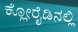
ಕ್ಲೋರೈಡಿನಲ್ಲಿ